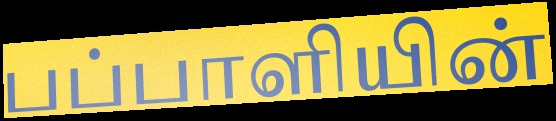
பப்பாளியின்